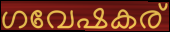
ഗവേഷകര്